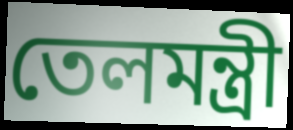
তেলমন্ত্রী